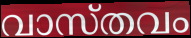
വാസ്തവം